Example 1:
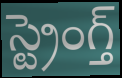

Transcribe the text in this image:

స్ట్రెంగ్త్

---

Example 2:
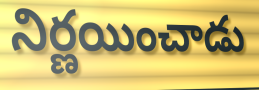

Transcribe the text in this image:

నిర్ణయించాడు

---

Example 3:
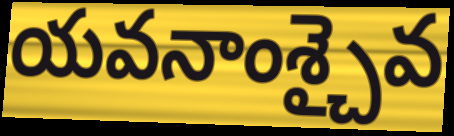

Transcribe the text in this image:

యవనాంశ్చైవ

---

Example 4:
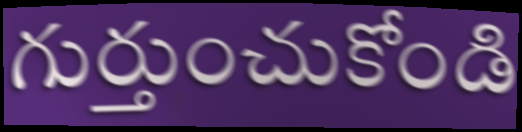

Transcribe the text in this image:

గుర్తుంచుకోండి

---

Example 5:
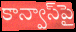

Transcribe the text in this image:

కాన్వాస్‌పై